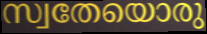
സ്വതേയൊരു